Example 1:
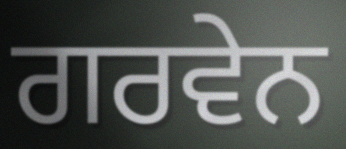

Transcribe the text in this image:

ਗਰਵੇਨ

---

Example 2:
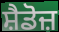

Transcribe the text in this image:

ਸ਼ੈਡੋਜ਼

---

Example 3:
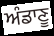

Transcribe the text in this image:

ਅੰਡਾਣੂ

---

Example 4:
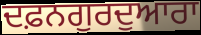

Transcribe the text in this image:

ਦਫ਼ਨਗੁਰਦੁਆਰਾ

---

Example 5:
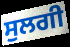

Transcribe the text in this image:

ਸੁਲਗੀ